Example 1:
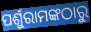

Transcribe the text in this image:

ପର୍ଶୁରାମଙ୍କଠାରୁ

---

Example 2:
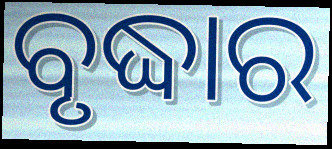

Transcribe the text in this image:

ବୃଦ୍ଧାର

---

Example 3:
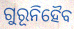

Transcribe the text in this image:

ଗୁରୂନିହୈବ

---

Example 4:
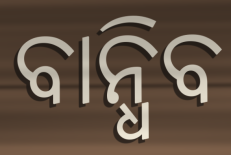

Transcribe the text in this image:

ବାନ୍ଧିବ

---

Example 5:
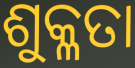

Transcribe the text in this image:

ଶୁକ୍ଳତା